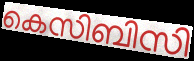
കെസിബിസി